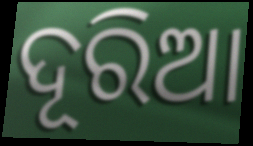
ଦୂରିଆ